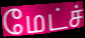
மேட்ச்